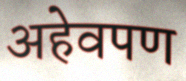
अहेवपण